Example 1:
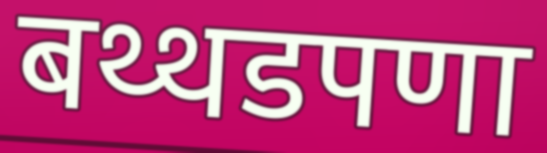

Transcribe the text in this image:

बथ्थडपणा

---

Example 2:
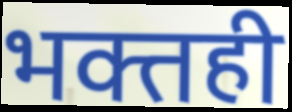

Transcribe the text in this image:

भक्तही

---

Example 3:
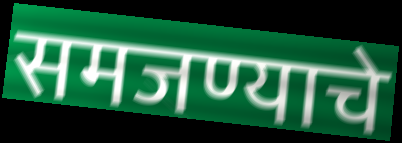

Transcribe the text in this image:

समजण्याचे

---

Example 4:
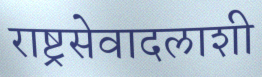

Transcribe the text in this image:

राष्ट्रसेवादलाशी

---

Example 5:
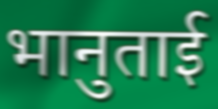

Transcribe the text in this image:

भानुताई